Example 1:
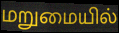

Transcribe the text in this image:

மறுமையில்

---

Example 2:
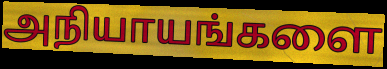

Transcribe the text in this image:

அநியாயங்களை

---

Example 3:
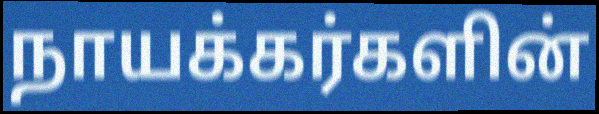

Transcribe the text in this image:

நாயக்கர்களின்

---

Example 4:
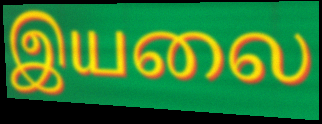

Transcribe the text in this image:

இயலை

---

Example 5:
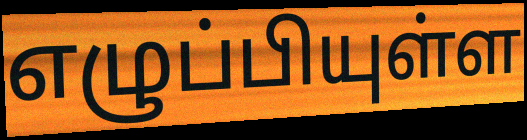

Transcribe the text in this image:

எழுப்பியுள்ள